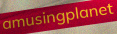
amusingplanet